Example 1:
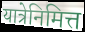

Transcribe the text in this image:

यात्रेनिमित्त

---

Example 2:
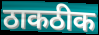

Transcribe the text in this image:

ठाकठीक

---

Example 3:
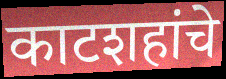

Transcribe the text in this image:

काटशहांचे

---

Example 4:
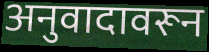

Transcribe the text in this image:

अनुवादावरून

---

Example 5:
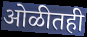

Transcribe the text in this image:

ओळीतही